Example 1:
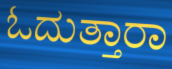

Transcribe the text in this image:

ಓದುತ್ತಾರಾ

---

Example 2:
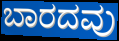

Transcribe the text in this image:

ಬಾರದವು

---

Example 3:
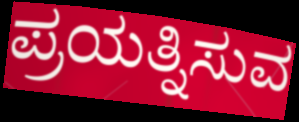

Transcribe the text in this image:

ಪ್ರಯತ್ನಿಸುವ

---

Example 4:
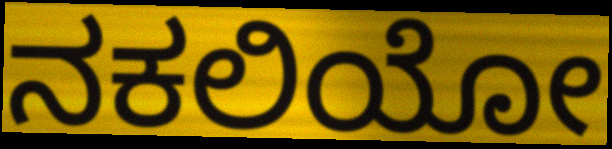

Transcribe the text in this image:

ನಕಲಿಯೋ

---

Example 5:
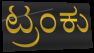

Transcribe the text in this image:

ಟ್ರಂಕು